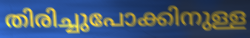
തിരിച്ചുപോക്കിനുള്ള